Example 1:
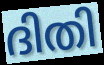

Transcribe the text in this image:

ദിതി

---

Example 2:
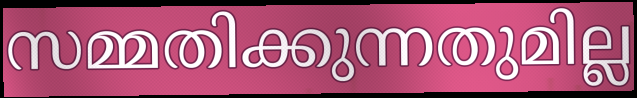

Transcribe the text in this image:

സമ്മതിക്കുന്നതുമില്ല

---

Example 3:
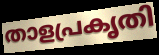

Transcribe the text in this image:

താളപ്രകൃതി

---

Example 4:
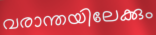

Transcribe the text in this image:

വരാന്തയിലേക്കും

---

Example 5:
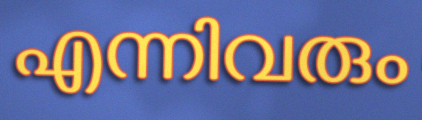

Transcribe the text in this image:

എന്നിവരും